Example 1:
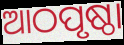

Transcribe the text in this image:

ଆଠପୃଷ୍ଠା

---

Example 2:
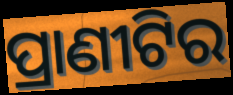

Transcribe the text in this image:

ପ୍ରାଣୀଟିର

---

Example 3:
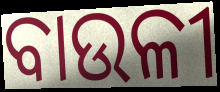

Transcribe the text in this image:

ବାଉଳୀ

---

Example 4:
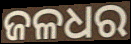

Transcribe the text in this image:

ଜଳଧର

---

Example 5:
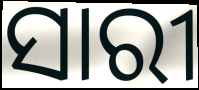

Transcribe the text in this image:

ସାରୀ